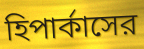
হিপার্কাসের